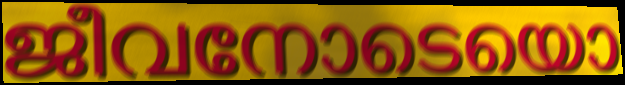
ജീവനോടെയൊ